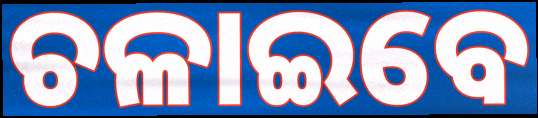
ଚଳାଇବେ